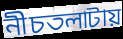
নীচতলাটায়